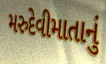
મરુદેવીમાતાનું